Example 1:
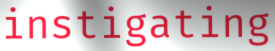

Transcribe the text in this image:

instigating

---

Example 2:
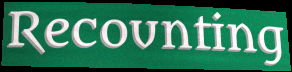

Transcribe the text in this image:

Recounting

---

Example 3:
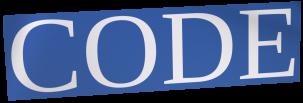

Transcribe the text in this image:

CODE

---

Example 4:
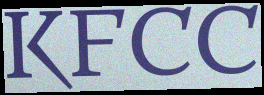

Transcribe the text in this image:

KFCC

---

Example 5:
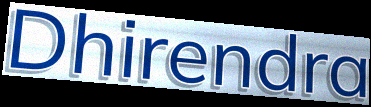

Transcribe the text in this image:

Dhirendra